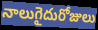
నాలుగైదురోజులు